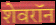
शेवरॉन